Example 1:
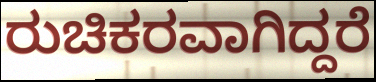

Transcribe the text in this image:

ರುಚಿಕರವಾಗಿದ್ದರೆ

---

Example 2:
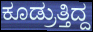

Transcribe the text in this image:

ಕೂಡ್ರುತ್ತಿದ್ದ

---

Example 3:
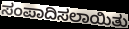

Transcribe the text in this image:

ಸಂಪಾದಿಸಲಾಯಿತು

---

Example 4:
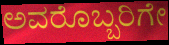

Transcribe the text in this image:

ಅವರೊಬ್ಬರಿಗೇ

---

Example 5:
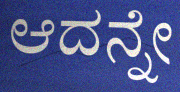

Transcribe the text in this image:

ಆದನ್ನೇ